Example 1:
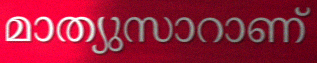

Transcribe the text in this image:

മാത്യുസാറാണ്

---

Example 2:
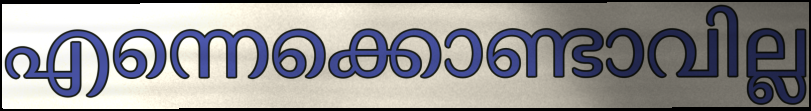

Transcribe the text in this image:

എന്നെക്കൊണ്ടാവില്ല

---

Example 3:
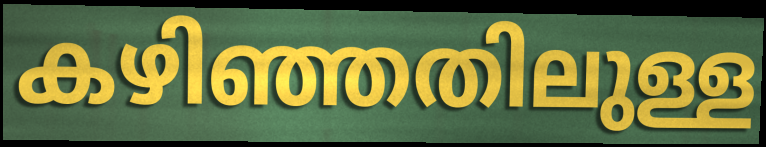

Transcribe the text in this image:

കഴിഞ്ഞതിലുള്ള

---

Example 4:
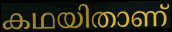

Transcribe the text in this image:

കഥയിതാണ്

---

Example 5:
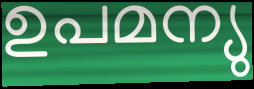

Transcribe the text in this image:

ഉപമന്യു